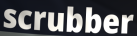
scrubber